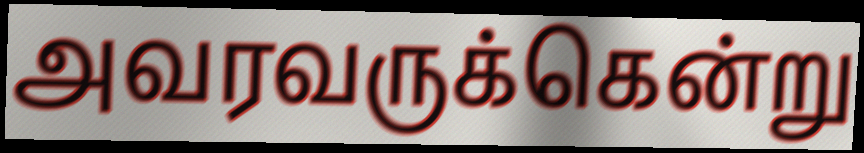
அவரவருக்கென்று